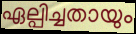
ഏല്പിച്ചതായും